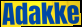
Adakke